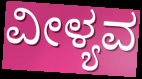
ವೀಳ್ಯವ